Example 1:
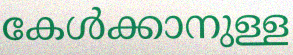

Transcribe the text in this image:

കേൾക്കാനുള്ള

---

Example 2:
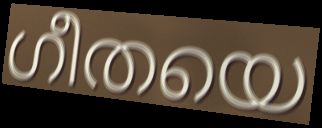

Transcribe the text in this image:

ഗീതയെ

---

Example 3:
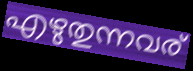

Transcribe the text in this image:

എഴുതുന്നവര്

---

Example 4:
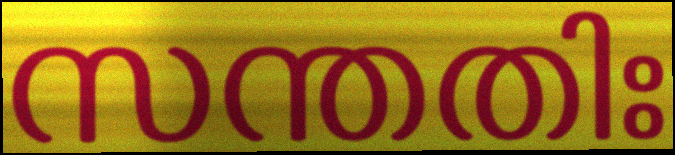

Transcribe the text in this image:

സന്തതിഃ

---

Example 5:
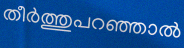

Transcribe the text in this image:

തീർത്തുപറഞ്ഞാൽ